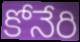
కోనేరి